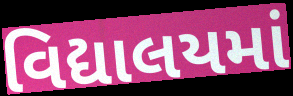
વિદ્યાલયમાં